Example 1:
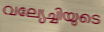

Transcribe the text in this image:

വല്യേച്ചിയുടെ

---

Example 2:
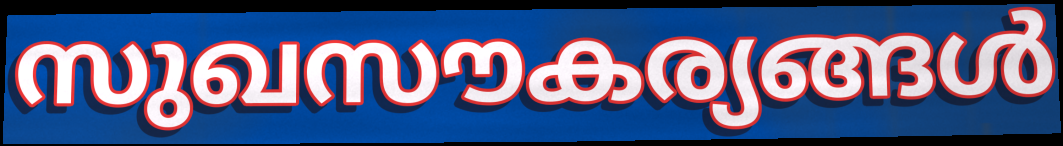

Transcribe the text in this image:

സുഖസൗകര്യങ്ങൾ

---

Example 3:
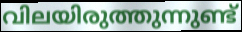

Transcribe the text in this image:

വിലയിരുത്തുന്നുണ്ട്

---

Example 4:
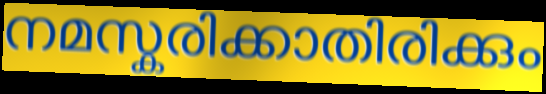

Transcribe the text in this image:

നമസ്കരിക്കാതിരിക്കും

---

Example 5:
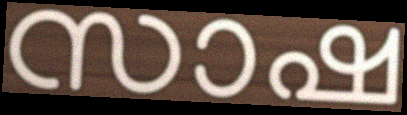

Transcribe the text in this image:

സാഷ